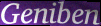
Geniben